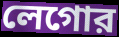
লেগোর